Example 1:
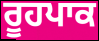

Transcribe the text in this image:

ਰੂਹਪਾਕ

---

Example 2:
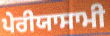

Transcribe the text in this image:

ਪੇਰੀਯਾਸਾਮੀ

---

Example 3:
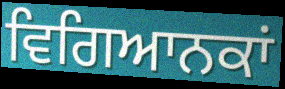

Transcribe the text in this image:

ਵਿਗਿਆਨਕਾਂ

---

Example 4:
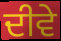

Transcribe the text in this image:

ਦੀਵੇ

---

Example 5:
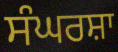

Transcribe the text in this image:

ਸੰਘਰਸ਼ਾ